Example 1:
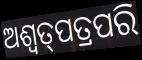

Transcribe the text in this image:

ଅଶ୍ଵତ୍‌ପତ୍ରପରି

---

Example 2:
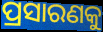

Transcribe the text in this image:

ପ୍ରସାରଣକୁ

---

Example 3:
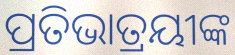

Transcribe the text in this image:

ପ୍ରତିଭାତ୍ରୟୀଙ୍କ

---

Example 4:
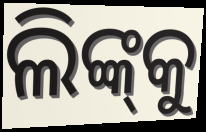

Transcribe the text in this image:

ଲିଙ୍କ୍‌କୁ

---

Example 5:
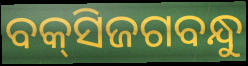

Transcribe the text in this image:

ବକ୍‌ସିଜଗବନ୍ଧୁ